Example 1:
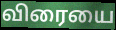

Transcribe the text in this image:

விரையை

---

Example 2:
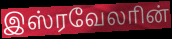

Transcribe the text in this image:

இஸ்ரவேலரின்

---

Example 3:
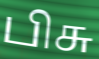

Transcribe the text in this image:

பிசு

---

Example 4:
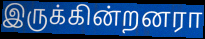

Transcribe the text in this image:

இருக்கின்றனரா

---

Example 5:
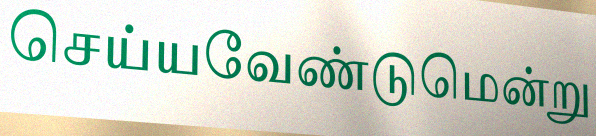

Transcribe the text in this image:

செய்யவேண்டுமென்று